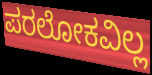
ಪರಲೋಕವಿಲ್ಲ